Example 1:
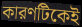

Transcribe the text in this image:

কারণটিকেই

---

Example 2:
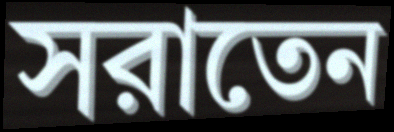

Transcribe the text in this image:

সরাতেন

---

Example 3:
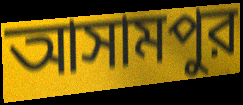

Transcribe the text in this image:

আসামপুর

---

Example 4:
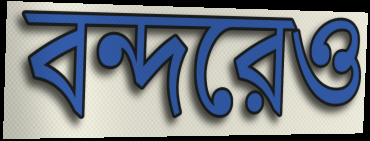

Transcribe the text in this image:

বন্দরেও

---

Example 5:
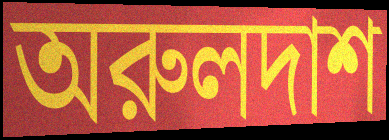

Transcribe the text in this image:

অরুলদাশ